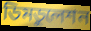
ডিমডুলেশন